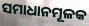
ସମାଧାନମୂଳକ